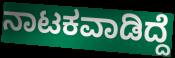
ನಾಟಕವಾಡಿದ್ದೆ